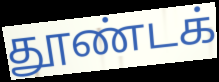
தூண்டக்